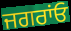
ਜਗਰਾਂਓ